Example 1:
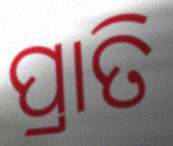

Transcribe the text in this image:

ପ୍ରାତି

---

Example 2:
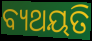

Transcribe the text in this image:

ବ୍ୟଥୟତି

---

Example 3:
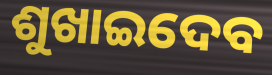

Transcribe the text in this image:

ଶୁଖାଇଦେବ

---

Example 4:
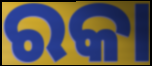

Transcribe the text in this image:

ରକା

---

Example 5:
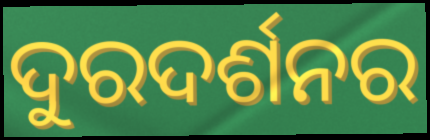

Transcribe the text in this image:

ଦୁରଦର୍ଶନର